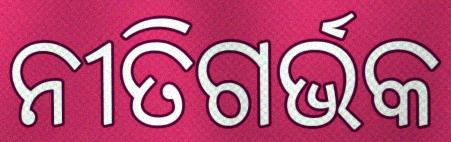
ନୀତିଗର୍ଭକ